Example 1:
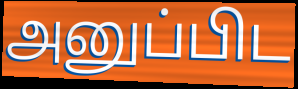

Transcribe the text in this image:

அனுப்பிட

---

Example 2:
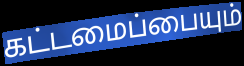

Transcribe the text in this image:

கட்டமைப்பையும்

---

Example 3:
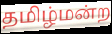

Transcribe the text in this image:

தமிழ்மன்ற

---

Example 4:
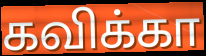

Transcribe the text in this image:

கவிக்கா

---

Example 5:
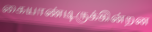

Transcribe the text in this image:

கையாண்டிருக்கின்றன